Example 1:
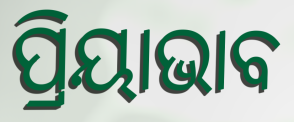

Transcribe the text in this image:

ପ୍ରିୟାଭାବ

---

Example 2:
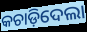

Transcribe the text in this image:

କଚାଡ଼ିଦେଲା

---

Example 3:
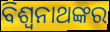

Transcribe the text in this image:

ବିଶ୍ୱନାଥଙ୍କର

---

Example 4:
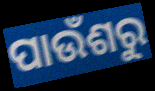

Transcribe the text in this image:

ପାଉଁଶରୁ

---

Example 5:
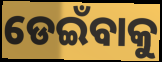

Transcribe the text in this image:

ଡେଇଁବାକୁ